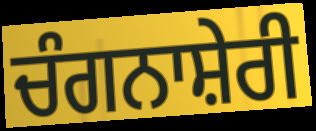
ਚੰਗਨਾਸ਼ੇਰੀ